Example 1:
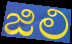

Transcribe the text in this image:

జిలి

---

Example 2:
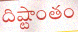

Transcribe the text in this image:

దిష్టాంతం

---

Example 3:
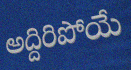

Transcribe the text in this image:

అద్దిరిపోయే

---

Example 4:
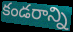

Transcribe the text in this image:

కండరాన్ని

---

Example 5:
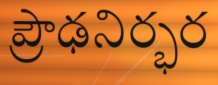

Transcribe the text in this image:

ప్రౌఢనిర్భర